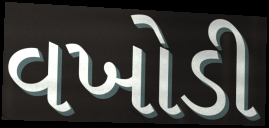
વખોડી